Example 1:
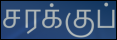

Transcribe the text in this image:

சரக்குப்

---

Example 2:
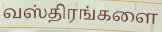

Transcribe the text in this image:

வஸ்திரங்களை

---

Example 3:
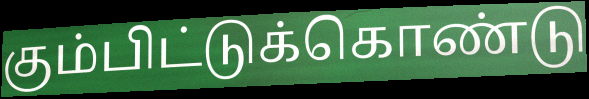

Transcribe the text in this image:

கும்பிட்டுக்கொண்டு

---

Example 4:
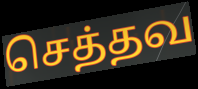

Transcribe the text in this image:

செத்தவ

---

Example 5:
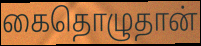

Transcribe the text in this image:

கைதொழுதான்